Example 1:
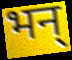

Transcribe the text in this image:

भन्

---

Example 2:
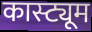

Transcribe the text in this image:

कास्ट्यूम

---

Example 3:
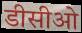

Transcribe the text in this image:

डीसीओ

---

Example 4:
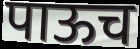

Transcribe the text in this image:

पाऊच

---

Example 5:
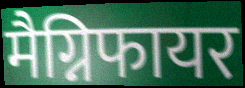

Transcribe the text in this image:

मैग्निफायर